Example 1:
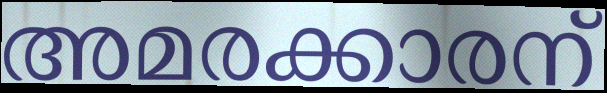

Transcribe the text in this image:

അമരക്കാരന്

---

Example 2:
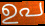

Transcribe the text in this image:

ഉപ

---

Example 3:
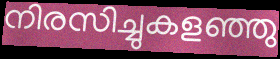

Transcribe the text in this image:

നിരസിച്ചുകളഞ്ഞു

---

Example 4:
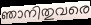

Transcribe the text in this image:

ഞാനിതുവരെ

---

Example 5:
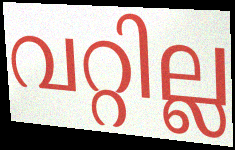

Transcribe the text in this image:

വറ്റില്ല